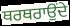
ਥਰਥਰਾਉਂਦੇ